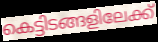
കെട്ടിടങ്ങളിലേക്ക്